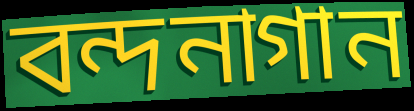
বন্দনাগান